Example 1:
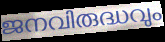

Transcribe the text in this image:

ജനവിരുദ്ധവും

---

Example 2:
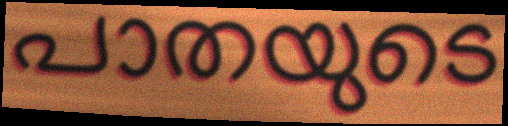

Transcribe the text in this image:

പാതയുടെ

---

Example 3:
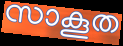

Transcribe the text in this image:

സാകൂത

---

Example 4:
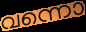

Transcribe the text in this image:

വന്നൊ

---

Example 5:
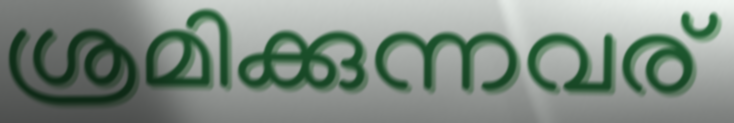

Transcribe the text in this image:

ശ്രമിക്കുന്നവര്